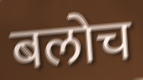
बलोच